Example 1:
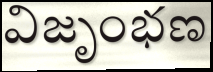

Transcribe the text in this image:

విజృంభణ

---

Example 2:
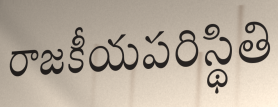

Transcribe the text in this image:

రాజకీయపరిస్థితి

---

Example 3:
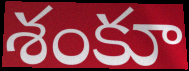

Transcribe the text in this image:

శంకూ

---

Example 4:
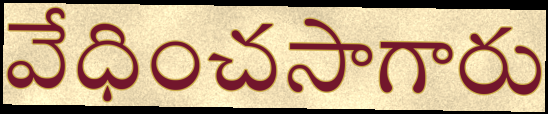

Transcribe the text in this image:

వేధించసాగారు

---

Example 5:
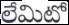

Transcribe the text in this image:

లేమిటో